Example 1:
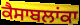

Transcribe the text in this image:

ਕੈਸਾਬਲਾਂਕਾ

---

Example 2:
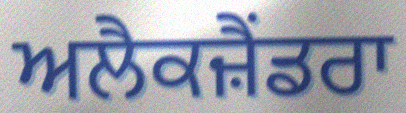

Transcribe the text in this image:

ਅਲੈਕਜ਼ੈਂਡਰਾ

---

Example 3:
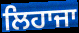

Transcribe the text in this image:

ਲਿਹਾਜਾ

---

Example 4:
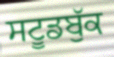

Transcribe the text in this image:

ਸਟੂਡਬੁੱਕ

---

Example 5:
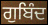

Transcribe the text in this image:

ਗੁਬਿੰਦ